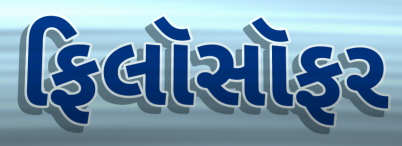
ફિલૉસૉફર